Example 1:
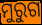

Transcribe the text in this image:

ମୁରୁଗ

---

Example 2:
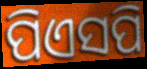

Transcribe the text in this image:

ପିଏସପି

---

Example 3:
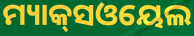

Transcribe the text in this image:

ମ୍ୟାକ୍‌ସଓୟେଲ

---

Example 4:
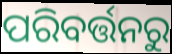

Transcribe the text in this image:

ପରିବର୍ତ୍ତନରୁ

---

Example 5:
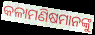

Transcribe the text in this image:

କଳାମଣିଷମାନଙ୍କୁ